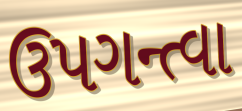
ઉપગન્ત્વા